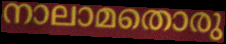
നാലാമതൊരു